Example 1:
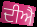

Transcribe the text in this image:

ਦੀਐ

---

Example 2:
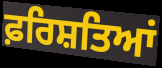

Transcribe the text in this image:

ਫ਼ਰਿਸ਼ਤਿਆਂ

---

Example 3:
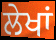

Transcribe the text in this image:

ਲੇਖਾਂ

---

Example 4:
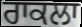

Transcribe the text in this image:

ਰਾਕਲਾ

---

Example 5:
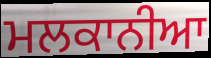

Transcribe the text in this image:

ਮਲਕਾਨੀਆ